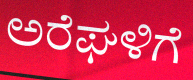
ಅರೆಘಳಿಗೆ